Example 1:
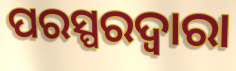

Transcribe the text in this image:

ପରସ୍ପରଦ୍ୱାରା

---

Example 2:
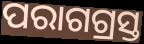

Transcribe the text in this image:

ପରାଗଗ୍ରସ୍ତ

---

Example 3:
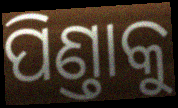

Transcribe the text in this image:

ପିଣ୍ତାକୁ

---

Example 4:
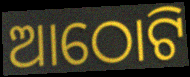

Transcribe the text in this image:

ଆଠୋଟି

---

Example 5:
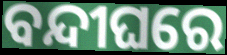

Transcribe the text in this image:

ବନ୍ଦୀଘରେ